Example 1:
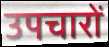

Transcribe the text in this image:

उपचारों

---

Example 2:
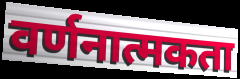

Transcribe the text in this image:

वर्णनात्मकता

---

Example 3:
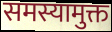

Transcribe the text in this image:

समस्यामुक्त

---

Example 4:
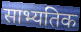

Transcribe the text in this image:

साभ्यतिक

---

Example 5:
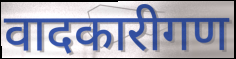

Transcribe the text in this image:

वादकारीगण